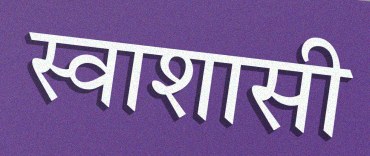
स्वाशासी